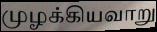
முழக்கியவாறு